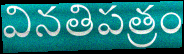
వినతిపత్రం